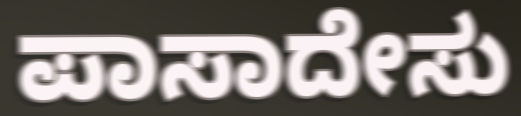
ಪಾಸಾದೇಸು